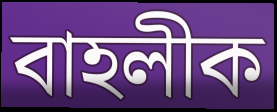
বাহলীক